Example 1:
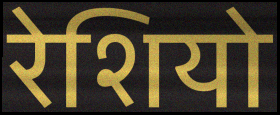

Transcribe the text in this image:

रेशियो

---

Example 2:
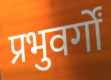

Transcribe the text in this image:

प्रभुवर्गों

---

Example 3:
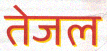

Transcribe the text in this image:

तेजल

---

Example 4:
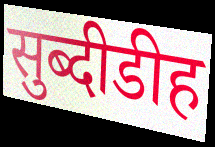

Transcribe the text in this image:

सुब्दीडीह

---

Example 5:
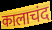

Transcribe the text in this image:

कालाचंद